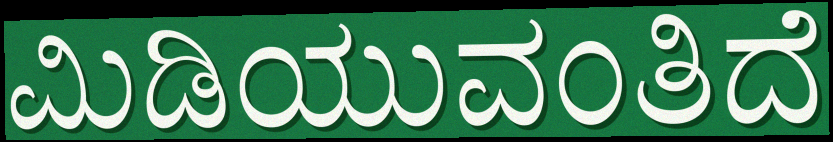
ಮಿಡಿಯುವಂತಿದೆ